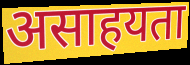
असाहयता